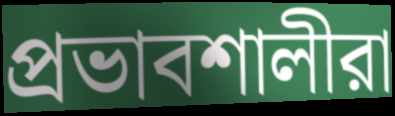
প্রভাবশালীরা